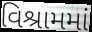
વિશ્રામમાં